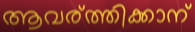
ആവര്ത്തിക്കാന്